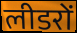
लीडरों